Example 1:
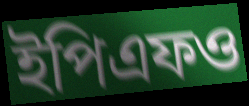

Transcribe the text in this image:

ইপিএফও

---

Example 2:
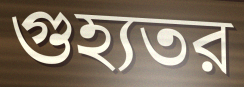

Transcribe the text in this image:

গুহ্যতর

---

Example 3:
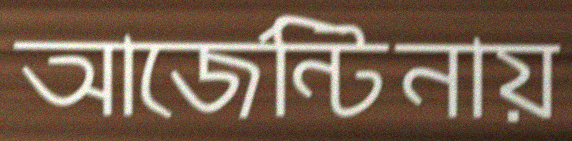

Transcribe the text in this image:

আর্জেন্টিনায়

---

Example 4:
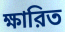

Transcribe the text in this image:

ক্ষারিত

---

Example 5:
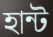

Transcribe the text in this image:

হান্ট